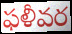
ఫళీవర